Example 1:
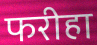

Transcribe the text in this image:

फरीहा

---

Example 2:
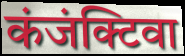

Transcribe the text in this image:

कंजंक्टिवा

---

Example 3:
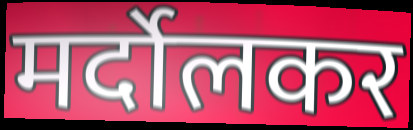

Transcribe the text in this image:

मर्दोलकर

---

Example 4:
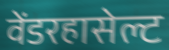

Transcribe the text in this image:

वेंडरहासेल्ट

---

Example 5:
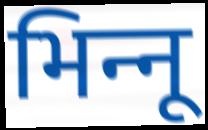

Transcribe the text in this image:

भिन्नू